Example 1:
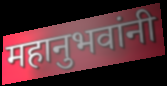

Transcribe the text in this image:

महानुभवांनी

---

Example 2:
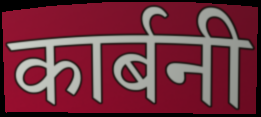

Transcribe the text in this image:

कार्बनी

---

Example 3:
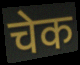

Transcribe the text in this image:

चेक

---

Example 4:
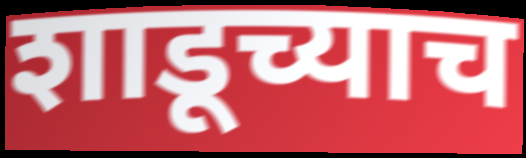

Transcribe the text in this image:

शाडूच्याच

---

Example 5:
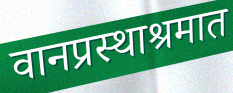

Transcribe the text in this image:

वानप्रस्थाश्रमात